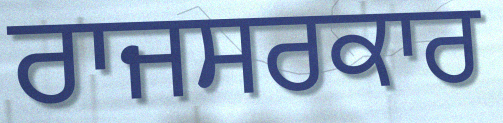
ਰਾਜਸਰਕਾਰ